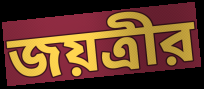
জয়ত্রীর